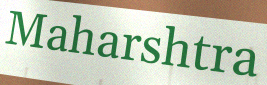
Maharshtra